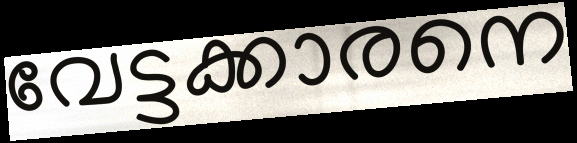
വേട്ടക്കാരനെ